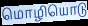
மொழியொடு